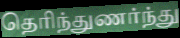
தெரிந்துணர்ந்து